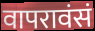
वापरावंसं